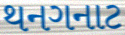
થનગનાટ